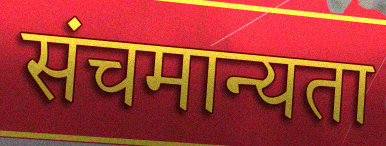
संचमान्यता